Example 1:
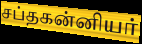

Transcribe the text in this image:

சப்தகன்னியர்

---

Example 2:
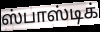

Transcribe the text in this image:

ஸ்பாஸ்டிக்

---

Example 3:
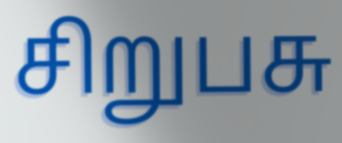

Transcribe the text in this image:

சிறுபசு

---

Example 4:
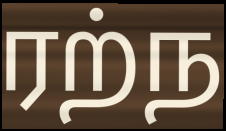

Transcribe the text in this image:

ரற்ந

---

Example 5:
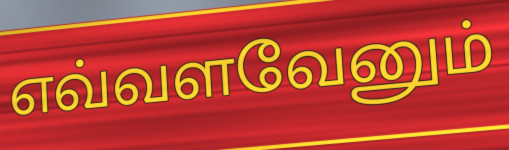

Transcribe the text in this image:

எவ்வளவேனும்